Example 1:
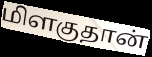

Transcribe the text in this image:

மிளகுதான்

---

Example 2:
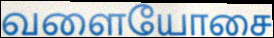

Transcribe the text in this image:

வளையோசை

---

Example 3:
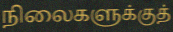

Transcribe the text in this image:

நிலைகளுக்குத்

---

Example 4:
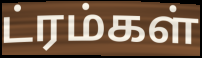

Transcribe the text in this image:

ட்ரம்கள்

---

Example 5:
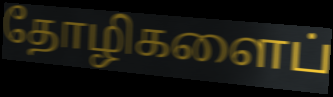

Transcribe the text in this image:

தோழிகளைப்